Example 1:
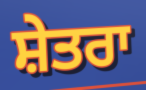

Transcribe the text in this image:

ਸ਼ੇਤਰਾ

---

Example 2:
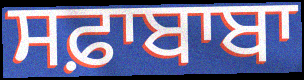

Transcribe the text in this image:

ਸਫ਼ਾਬਾਬਾ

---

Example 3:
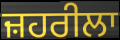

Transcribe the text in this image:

ਜ਼ਹਰੀਲਾ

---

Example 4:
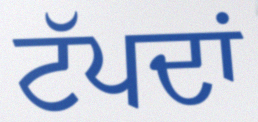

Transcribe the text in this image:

ਟੱਪਦਾਂ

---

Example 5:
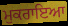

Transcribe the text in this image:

ਮੁਕਰਾਇਆ